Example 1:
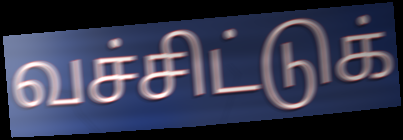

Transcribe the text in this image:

வச்சிட்டுக்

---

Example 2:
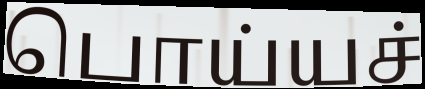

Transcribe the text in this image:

பொய்யச்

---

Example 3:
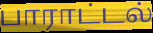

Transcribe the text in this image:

பாராட்டல்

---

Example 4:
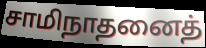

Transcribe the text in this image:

சாமிநாதனைத்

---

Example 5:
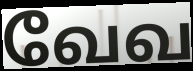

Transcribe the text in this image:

வேவ